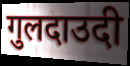
गुलदाउदी